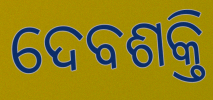
ଦେବଶକ୍ତି